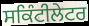
ਸਕਿੰਟੀਲੇਟਰ